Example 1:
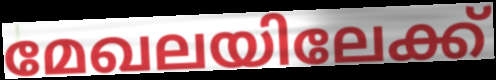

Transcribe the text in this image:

മേഖലയിലേക്ക്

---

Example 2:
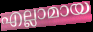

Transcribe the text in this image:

എല്ലാമായ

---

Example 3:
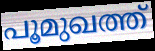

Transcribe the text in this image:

പൂമുഖത്ത്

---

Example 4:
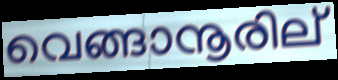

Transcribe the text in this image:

വെങ്ങാനൂരില്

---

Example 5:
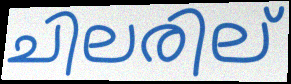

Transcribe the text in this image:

ചിലരില്